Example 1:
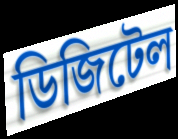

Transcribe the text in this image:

ডিজিটেল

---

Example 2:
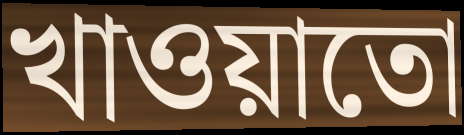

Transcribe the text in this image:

খাওয়াতো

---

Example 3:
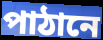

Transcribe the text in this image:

পাঠানে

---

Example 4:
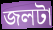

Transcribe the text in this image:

জলটা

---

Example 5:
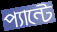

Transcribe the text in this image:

প্যান্টে